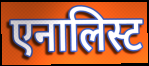
एनालिस्ट